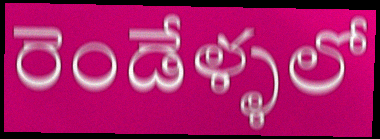
రెండేళ్ళలో